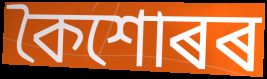
কৈশোৰৰ